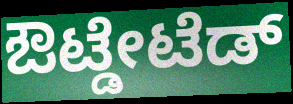
ಔಟ್ಡೇಟೆಡ್